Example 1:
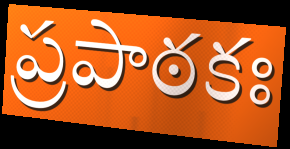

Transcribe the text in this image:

ప్రపాఠకః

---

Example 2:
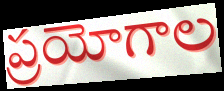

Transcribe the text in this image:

ప్రయోగాల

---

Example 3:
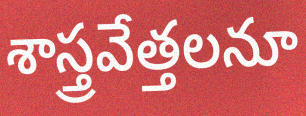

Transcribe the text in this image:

శాస్త్రవేత్తలనూ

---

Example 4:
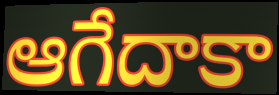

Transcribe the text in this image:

ఆగేదాకా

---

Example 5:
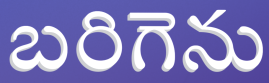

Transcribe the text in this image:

బరిగెను